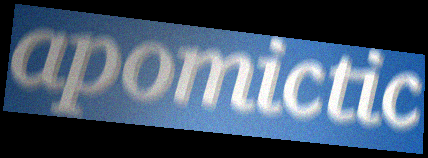
apomictic